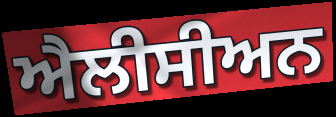
ਐਲੀਸੀਅਨ